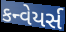
કન્વેયર્સ